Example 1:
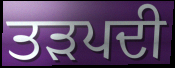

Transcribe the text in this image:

ਤੜਪਦੀ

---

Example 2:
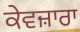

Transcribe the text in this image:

ਕੇਵਜ਼ਾਰਾ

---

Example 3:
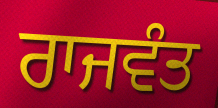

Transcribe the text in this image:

ਰਾਜਵੰਤ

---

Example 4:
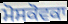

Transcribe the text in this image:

ਮੋਸਕੋਵਕਾ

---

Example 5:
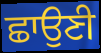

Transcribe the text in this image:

ਛਾਉਣੀ